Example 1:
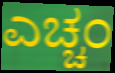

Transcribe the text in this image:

ಎಚ್ಚಂ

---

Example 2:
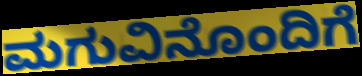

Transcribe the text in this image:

ಮಗುವಿನೊಂದಿಗೆ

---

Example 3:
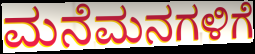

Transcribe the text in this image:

ಮನೆಮನಗಳಿಗೆ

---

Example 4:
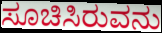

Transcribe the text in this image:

ಸೂಚಿಸಿರುವನು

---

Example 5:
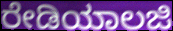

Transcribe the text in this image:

ರೇಡಿಯಾಲಜಿ